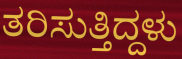
ತರಿಸುತ್ತಿದ್ದಳು